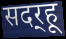
सदर्हू